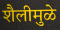
शैलीमुळे